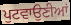
ਪੁਟਵਾਉਣੀਆਂ